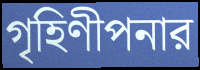
গৃহিণীপনার